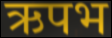
ऋपभ